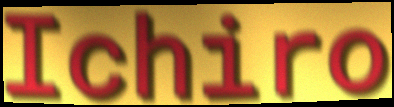
Ichiro